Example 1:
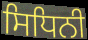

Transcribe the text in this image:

ਸਿਧਿਨੀ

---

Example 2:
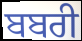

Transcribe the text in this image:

ਬਬਰੀ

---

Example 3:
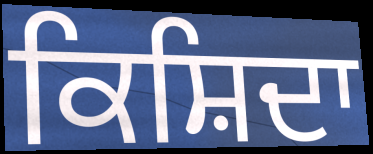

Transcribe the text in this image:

ਕਿਸ਼ਿਦਾ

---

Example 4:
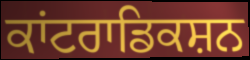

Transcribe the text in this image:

ਕਾਂਟਰਾਡਿਕਸ਼ਨ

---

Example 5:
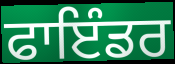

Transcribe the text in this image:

ਫਾਇੰਡਰ